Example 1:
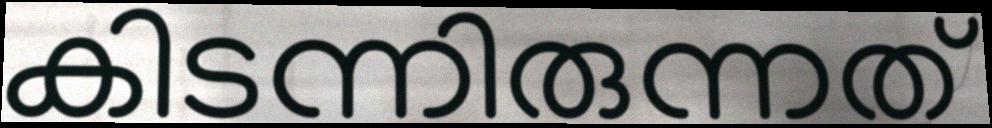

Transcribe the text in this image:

കിടന്നിരുന്നത്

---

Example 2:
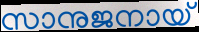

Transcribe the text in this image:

സാനുജനായ്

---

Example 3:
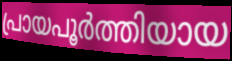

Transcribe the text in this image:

പ്രായപൂർത്തിയായ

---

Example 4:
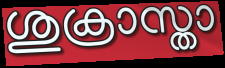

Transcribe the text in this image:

ശുക്രാസ്താ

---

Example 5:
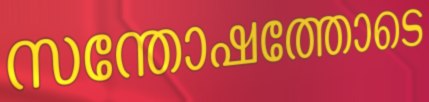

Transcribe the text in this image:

സന്തോഷത്തോടെ